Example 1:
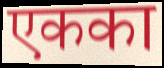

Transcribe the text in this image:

एकका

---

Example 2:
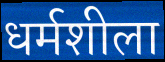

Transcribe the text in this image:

धर्मशीला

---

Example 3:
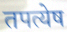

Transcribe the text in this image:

तपत्येष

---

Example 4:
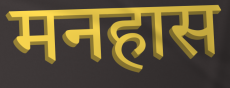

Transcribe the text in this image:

मनहास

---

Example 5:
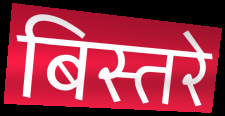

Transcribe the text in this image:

बिस्तरे